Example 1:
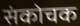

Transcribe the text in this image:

संकोचक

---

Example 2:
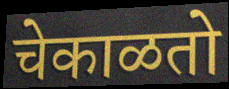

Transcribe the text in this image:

चेकाळतो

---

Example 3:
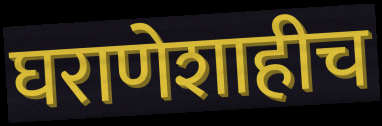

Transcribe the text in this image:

घराणेशाहीच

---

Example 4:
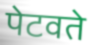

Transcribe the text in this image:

पेटवते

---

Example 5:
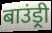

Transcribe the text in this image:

बाउंड्री